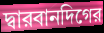
দ্বারবানদিগের